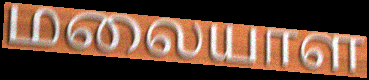
மலையாள